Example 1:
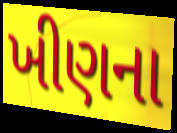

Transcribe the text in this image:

ખીણના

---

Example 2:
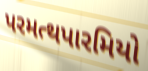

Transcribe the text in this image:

પરમત્થપારમિયો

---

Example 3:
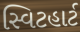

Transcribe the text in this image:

સ્વિટહાર્ટ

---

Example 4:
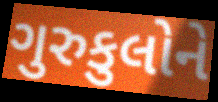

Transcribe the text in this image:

ગુરુકુલોને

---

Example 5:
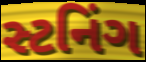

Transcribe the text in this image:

સ્ટનિંગ